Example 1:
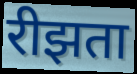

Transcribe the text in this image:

रीझता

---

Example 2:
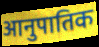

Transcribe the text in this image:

आनुपातिक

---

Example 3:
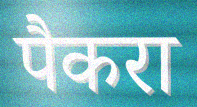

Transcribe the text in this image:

पैकरा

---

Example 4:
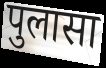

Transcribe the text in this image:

पुलासा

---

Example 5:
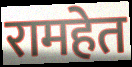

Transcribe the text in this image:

रामहेत